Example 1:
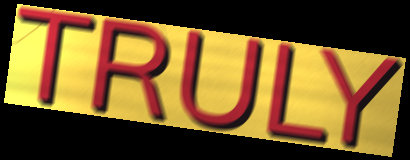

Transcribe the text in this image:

TRULY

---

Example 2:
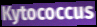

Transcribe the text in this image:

Kytococcus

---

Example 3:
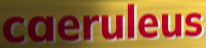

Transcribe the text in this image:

caeruleus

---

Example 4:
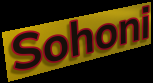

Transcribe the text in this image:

Sohoni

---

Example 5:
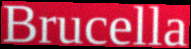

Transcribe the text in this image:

Brucella